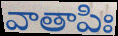
వాతాపిః